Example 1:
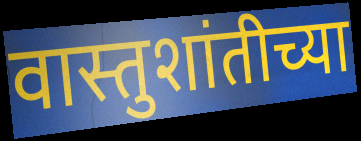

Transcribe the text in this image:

वास्तुशांतीच्या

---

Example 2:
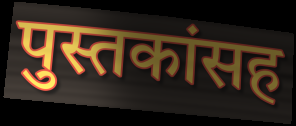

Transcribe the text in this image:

पुस्तकांसह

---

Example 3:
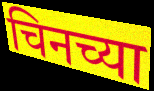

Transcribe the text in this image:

चिनच्या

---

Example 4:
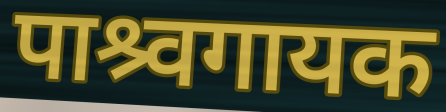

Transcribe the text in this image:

पाश्र्वगायक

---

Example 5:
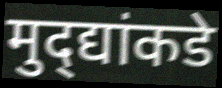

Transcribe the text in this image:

मुद्द्यांकडे